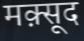
मक़्सूद